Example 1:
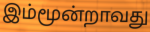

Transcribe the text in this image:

இம்மூன்றாவது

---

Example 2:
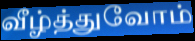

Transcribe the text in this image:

வீழ்த்துவோம்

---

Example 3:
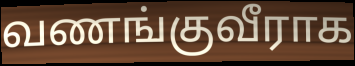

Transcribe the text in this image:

வணங்குவீராக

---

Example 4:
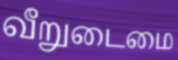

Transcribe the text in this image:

வீறுடைமை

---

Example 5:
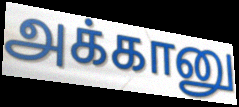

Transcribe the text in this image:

அக்கானு